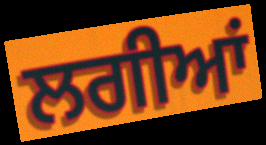
ਲਗੀਆਂ